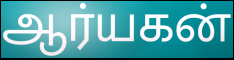
ஆர்யகன்